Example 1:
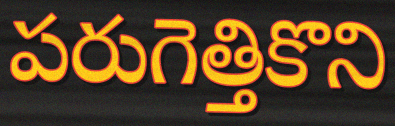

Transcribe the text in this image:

పరుగెత్తికొని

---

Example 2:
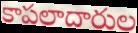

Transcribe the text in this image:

కాపలాదారుల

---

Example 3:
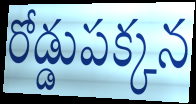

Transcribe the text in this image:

రోడ్డుపక్కన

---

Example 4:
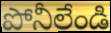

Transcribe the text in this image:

పోనీలేండి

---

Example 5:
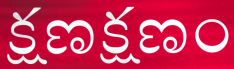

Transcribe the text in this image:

క్షణక్షణం